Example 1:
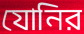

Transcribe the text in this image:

যোনির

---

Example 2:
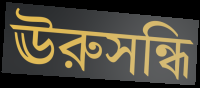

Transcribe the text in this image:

ঊরুসন্ধি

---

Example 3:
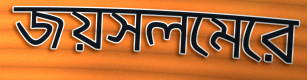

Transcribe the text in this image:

জয়সলমেরে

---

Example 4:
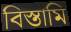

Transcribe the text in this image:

বিস্তামি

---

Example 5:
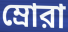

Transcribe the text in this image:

ম্রোরা